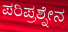
ಪರಿಪ್ರಶ್ನೇನ